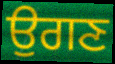
ਉਗਣ